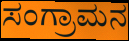
ಸಂಗ್ರಾಮನ